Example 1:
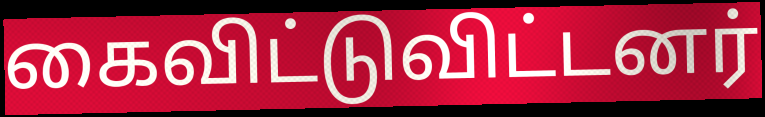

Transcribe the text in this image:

கைவிட்டுவிட்டனர்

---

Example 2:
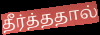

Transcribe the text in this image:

தீர்த்ததால்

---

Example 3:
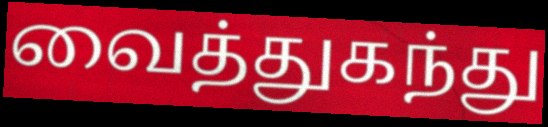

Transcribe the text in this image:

வைத்துகந்து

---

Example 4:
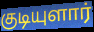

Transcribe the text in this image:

குடியுளார்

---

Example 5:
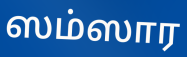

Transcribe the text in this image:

ஸம்ஸார